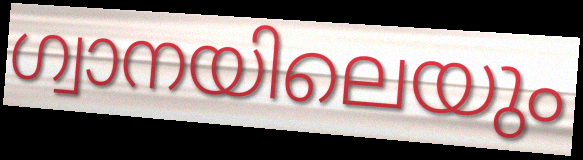
ഗ്വാനയിലെയും